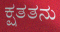
ಕ್ಷತತನು